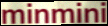
minmini